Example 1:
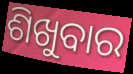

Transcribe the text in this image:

ଶିଖୁବାର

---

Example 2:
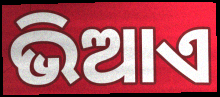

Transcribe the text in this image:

ଭିଆଏ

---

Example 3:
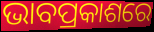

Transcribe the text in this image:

ଭାବପ୍ରକାଶରେ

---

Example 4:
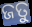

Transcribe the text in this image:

ଜତୁ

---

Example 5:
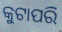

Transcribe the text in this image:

କୁଟାପରି